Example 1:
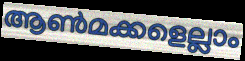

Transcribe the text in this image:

ആൺമക്കളെല്ലാം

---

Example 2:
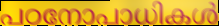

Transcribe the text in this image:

പഠനോപാധികൾ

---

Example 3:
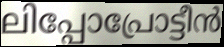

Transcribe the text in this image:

ലിപ്പോപ്രോട്ടീൻ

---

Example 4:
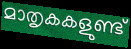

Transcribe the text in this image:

മാതൃകകളുണ്ട്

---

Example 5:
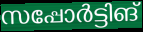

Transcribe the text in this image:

സപ്പോർട്ടിങ്